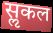
सॢकल